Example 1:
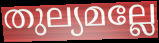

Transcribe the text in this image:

തുല്യമല്ലേ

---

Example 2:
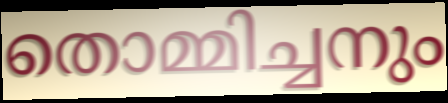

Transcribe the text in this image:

തൊമ്മിച്ചനും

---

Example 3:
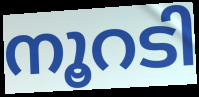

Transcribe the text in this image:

നൂറടി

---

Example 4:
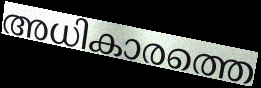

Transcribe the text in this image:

അധികാരത്തെ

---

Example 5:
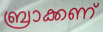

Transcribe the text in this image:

ബ്രാക്കണ്